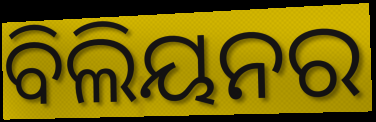
ବିଲିୟନର